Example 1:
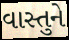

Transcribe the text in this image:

વાસ્તુને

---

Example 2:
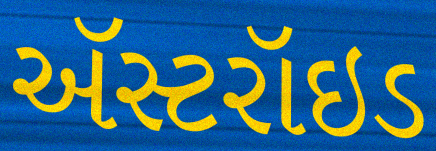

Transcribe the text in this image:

ઍસ્ટરૉઇડ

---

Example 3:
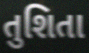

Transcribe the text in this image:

તુશિતા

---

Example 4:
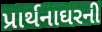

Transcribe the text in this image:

પ્રાર્થનાઘરની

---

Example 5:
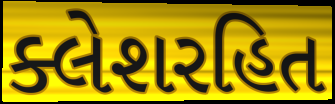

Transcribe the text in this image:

ક્લેશરહિત